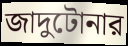
জাদুটোনার